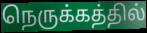
நெருக்கத்தில்